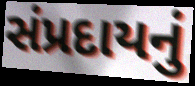
સંપ્રદાયનું